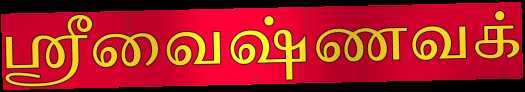
ஸ்ரீவைஷ்ணவக்